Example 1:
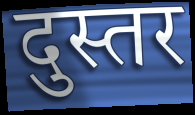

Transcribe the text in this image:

दुस्तर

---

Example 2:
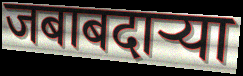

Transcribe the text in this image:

जबाबदार्‍या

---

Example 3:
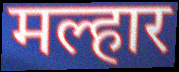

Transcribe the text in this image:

मल्हार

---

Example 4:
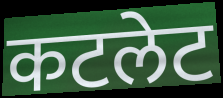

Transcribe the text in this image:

कटलेट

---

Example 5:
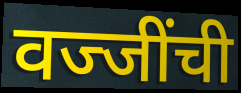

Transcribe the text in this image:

वज्जींची